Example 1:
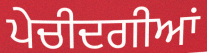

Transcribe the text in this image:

ਪੇਚੀਦਗੀਆਂ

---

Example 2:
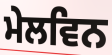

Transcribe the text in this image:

ਮੇਲਵਿਨ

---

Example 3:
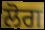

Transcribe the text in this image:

ਲੋਗ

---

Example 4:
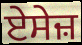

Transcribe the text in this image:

ਏਸੇਜ਼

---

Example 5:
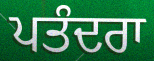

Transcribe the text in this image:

ਪਤੰਦਰਾ